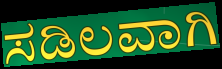
ಸಡಿಲವಾಗಿ